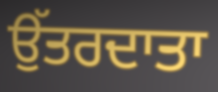
ਉੱਤਰਦਾਤਾ